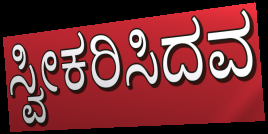
ಸ್ವೀಕರಿಸಿದವ